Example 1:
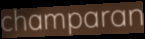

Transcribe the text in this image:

champaran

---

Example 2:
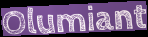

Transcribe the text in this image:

Olumiant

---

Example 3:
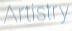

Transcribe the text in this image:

Artistry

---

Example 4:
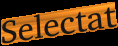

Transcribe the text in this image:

Selectat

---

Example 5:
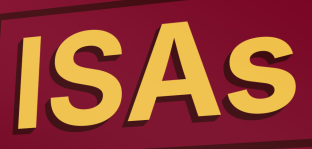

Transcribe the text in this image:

ISAs